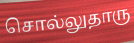
சொல்லுதாரு